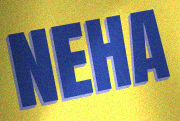
NEHA